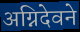
अग्निदेवने